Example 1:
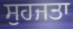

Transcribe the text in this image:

ਸੁਹਜਤਾ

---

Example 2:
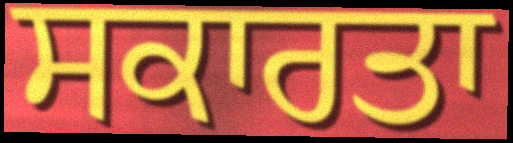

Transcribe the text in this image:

ਸਕਾਰਤਾ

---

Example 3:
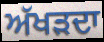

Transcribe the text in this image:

ਅੱਖੜਦਾ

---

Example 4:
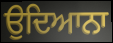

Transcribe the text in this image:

ਉਦਿਆਨਾ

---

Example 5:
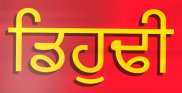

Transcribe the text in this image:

ਡਿਹੁਢੀ